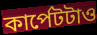
কার্পেটটাও